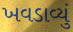
ખવડાવ્યું